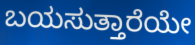
ಬಯಸುತ್ತಾರೆಯೇ